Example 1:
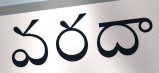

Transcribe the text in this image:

వరదా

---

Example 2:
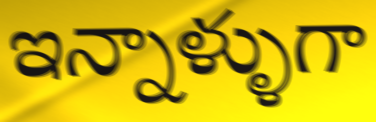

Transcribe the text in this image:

ఇన్నాళ్ళుగా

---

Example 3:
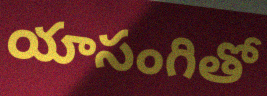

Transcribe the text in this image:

యాసంగితో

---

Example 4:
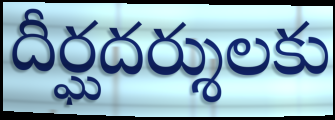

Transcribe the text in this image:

దీర్ఘదర్శులకు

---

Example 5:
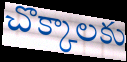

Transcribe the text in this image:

చొక్కాలకు